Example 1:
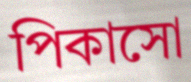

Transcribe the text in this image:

পিকাসো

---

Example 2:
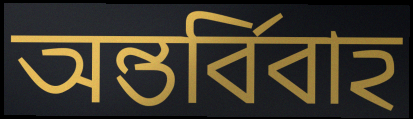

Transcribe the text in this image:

অন্তর্বিবাহ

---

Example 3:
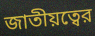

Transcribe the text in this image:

জাতীয়ত্বের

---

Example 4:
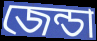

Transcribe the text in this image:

জেন্ডা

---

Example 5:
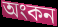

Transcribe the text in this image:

অংকন